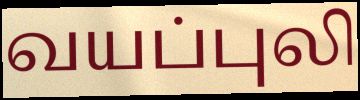
வயப்புலி